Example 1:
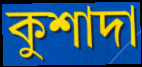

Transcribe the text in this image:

কুশাদা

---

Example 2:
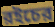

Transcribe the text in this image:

রইচের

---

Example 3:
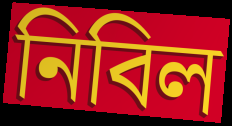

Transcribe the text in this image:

নিবিল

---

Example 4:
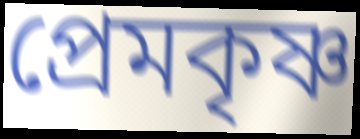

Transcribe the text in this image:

প্রেমকৃষ্ণ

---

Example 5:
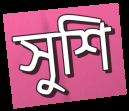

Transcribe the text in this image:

সুশি